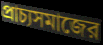
প্রাচ্যসমাজের